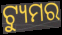
ଟ୍ୟୁମର